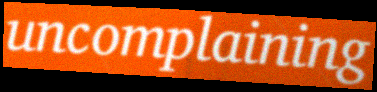
uncomplaining